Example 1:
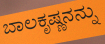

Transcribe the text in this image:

ಬಾಲಕೃಷ್ಣನನ್ನು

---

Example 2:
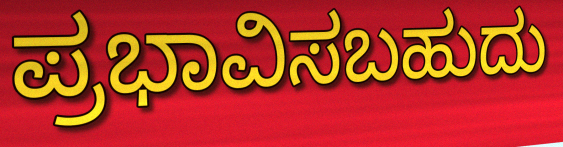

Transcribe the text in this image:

ಪ್ರಭಾವಿಸಬಹುದು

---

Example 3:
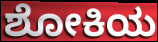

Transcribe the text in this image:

ಶೋಕಿಯ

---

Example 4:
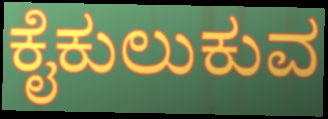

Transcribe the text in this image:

ಕೈಕುಲುಕುವ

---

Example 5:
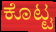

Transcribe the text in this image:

ಕೊಟ್ಟ